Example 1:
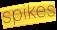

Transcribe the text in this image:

spikes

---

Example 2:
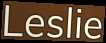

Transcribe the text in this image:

Leslie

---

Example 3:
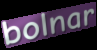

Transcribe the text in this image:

bolnar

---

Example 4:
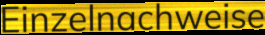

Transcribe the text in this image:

Einzelnachweise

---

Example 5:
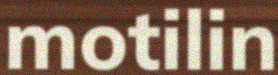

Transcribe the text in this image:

motilin